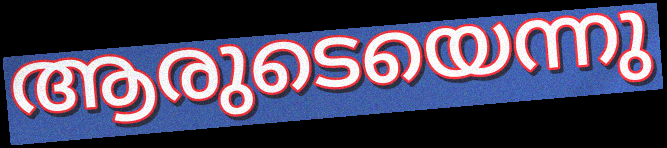
ആരുടെയെന്നു